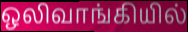
ஒலிவாங்கியில்